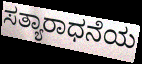
ಸತ್ಯಾರಾಧನೆಯ